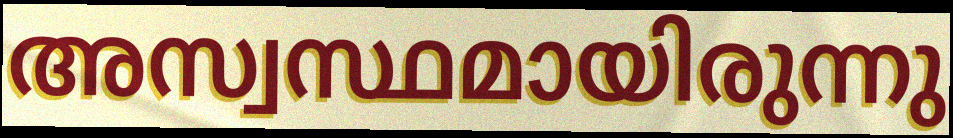
അസ്വസ്ഥമായിരുന്നു